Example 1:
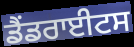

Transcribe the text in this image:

ਡੈਂਡਰਾਈਟਸ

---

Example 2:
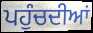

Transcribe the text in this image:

ਪਹੁੰਚਦੀਆਂ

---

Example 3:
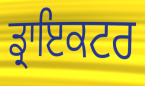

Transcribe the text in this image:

ਡ੍ਰਾਇਕਟਰ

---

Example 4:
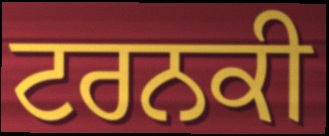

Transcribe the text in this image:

ਟਰਨਕੀ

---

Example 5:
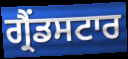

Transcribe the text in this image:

ਗ੍ਰੈਂਡਸਟਾਰ